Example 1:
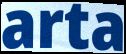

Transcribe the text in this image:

arta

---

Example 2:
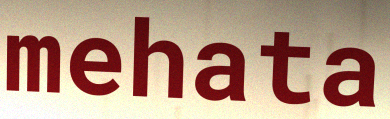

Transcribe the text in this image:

mehata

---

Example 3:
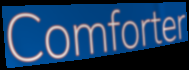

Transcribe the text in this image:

Comforter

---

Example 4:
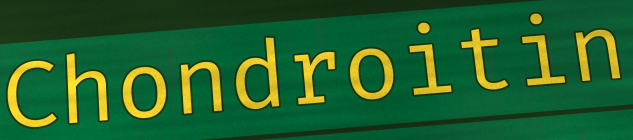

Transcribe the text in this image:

Chondroitin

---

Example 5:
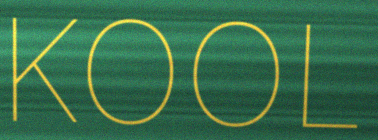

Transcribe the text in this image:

KOOL